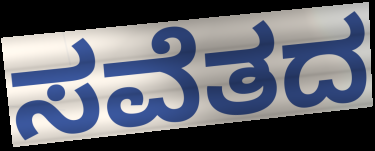
ಸವೆತದ